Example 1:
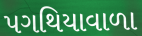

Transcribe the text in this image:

પગથિયાવાળા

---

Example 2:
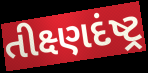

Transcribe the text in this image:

તીક્ષ્ણદંષ્ટ્ર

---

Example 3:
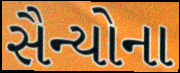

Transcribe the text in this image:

સૈન્યોના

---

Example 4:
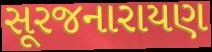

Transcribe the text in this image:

સૂરજનારાયણ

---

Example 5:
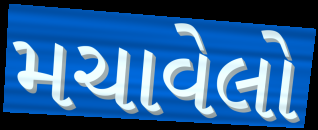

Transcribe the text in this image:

મચાવેલો